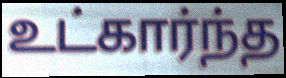
உட்கார்ந்த